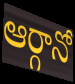
ఆర్గానో